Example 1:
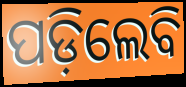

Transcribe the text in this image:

ପଡ଼ିଲେବି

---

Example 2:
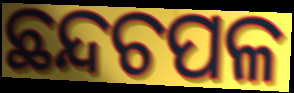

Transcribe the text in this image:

ଛନ୍ଦଚପଳ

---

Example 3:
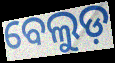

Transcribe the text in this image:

ବେଲୁଡ଼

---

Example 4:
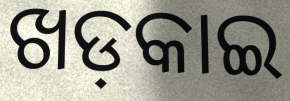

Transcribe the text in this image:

ଖଡ଼କାଇ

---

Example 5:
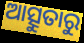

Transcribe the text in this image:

ଆତ୍ସୁତାରୁ